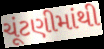
ચૂંટણીમાંથી